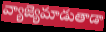
వ్యాజ్యెమాడుతాడా